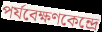
পর্যবেক্ষণকেন্দ্রে